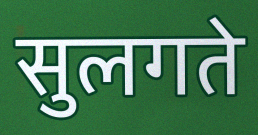
सुलगते